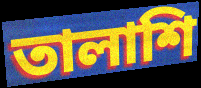
তালাশি